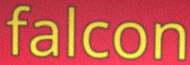
falcon